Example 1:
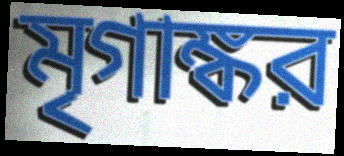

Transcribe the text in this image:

মৃগাঙ্কর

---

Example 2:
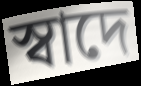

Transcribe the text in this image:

স্বাদে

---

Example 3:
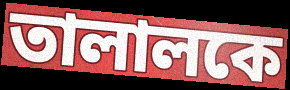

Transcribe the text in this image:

তালালকে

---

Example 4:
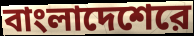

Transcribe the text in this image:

বাংলাদেশেরে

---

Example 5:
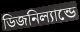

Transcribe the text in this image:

ডিজনিল্যান্ডে